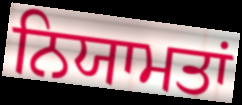
ਨਿਯਾਮਤਾਂ